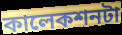
কালেকশনটা